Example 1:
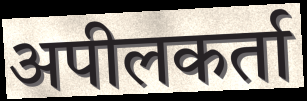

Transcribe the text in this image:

अपीलकर्ता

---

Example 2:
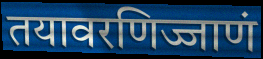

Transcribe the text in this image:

तयावरणिज्जाणं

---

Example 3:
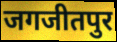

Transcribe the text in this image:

जगजीतपुर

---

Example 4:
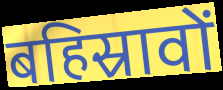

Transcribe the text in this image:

बहिस्रावों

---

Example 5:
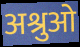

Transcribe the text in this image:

अश्रुओ